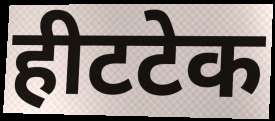
हीटटेक